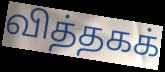
வித்தகக்